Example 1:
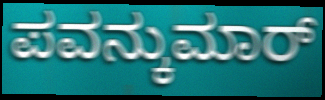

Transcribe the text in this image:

ಪವನ್ಕುಮಾರ್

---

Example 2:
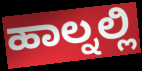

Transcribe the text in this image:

ಹಾಲ್ನಲ್ಲಿ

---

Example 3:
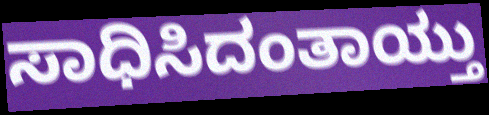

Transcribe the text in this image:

ಸಾಧಿಸಿದಂತಾಯ್ತು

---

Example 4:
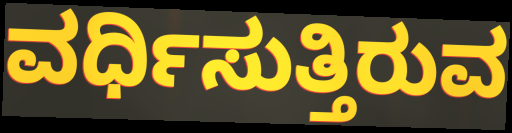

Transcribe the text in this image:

ವರ್ಧಿಸುತ್ತಿರುವ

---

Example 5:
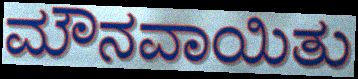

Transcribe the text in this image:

ಮೌನವಾಯಿತು